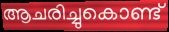
ആചരിച്ചുകൊണ്ട്